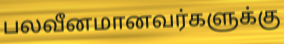
பலவீனமானவர்களுக்கு